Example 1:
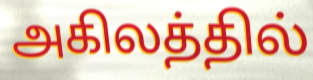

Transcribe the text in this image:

அகிலத்தில்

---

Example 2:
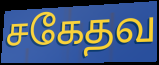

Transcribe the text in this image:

சகேதவ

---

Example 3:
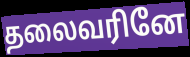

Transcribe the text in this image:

தலைவரினே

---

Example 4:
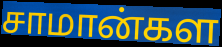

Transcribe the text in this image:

சாமான்கள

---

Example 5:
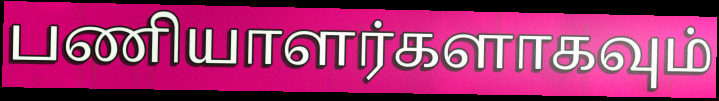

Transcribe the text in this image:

பணியாளர்களாகவும்